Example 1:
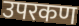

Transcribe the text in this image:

उपरकण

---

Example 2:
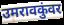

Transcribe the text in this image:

उमरावकुंवर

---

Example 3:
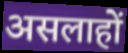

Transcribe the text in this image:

असलाहों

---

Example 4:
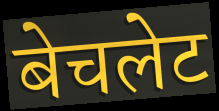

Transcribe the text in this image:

बेचलेट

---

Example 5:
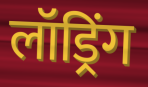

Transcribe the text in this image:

लॉड्रिंग